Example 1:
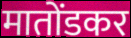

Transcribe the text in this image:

मातोंडकर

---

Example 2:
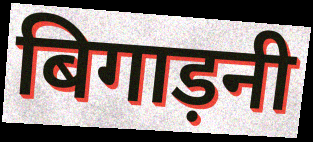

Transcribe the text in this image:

बिगाड़नी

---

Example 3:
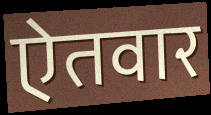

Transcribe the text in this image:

ऐतवार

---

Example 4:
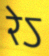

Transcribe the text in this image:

रेऽ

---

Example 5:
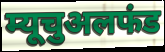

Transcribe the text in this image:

म्यूचुअलफंड